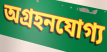
অগ্রহনযোগ্য